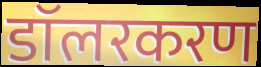
डॉलरकरण